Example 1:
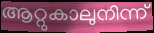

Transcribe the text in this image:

ആറ്റുകാലുനിന്ന്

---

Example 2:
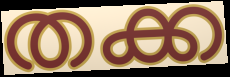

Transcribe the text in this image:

തക്ക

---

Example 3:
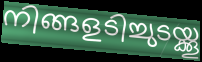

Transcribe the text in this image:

നിങ്ങളടിച്ചുടയ്ക്കൂ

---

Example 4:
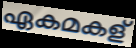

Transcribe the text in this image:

ഏകമകള്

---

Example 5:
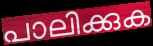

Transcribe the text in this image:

പാലിക്കുക